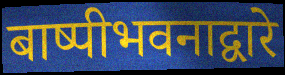
बाष्पीभवनाद्वारे